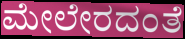
ಮೇಲೇರದಂತೆ